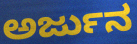
ಅರ್ಜುನ